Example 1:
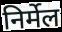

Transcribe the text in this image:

निर्मेल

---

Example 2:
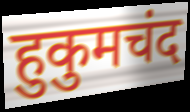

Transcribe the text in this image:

हुकुमचंद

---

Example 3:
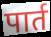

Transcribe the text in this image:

पार्त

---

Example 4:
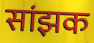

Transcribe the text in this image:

सांझक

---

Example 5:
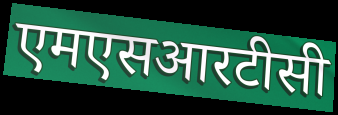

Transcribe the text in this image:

एमएसआरटीसी